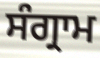
ਸੰਗ੍ਰਾਮ